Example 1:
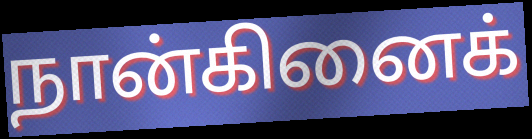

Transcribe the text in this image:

நான்கினைக்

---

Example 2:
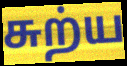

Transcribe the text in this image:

சுற்ய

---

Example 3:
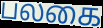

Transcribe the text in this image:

பலகை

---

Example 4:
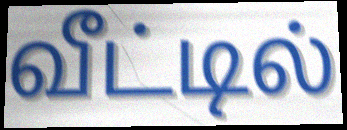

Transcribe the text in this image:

வீட்டில்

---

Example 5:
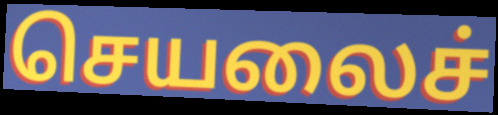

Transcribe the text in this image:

செயலைச்